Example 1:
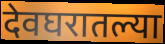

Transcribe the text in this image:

देवघरातल्या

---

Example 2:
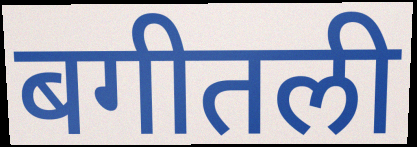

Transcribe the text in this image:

बगीतली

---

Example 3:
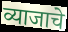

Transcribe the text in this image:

व्याजाचे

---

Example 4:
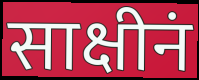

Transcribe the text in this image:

साक्षीनं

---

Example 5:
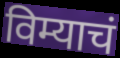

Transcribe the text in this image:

विम्याचं